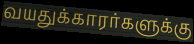
வயதுக்காரர்களுக்கு